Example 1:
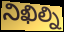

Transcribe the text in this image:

నిఖిల్ని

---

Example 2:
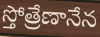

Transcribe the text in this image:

స్తోత్రేణానేన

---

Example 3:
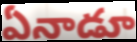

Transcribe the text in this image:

ఏనాడూ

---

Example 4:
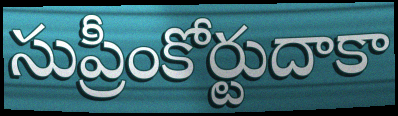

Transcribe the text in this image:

సుప్రీంకోర్టుదాకా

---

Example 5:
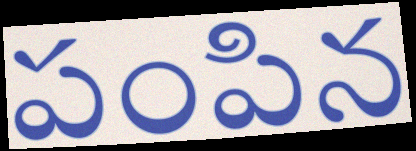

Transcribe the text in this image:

పంపిన